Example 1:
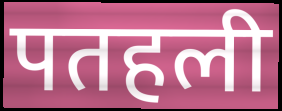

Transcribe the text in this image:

पतहली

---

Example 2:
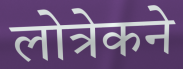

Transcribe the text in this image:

लोत्रेकने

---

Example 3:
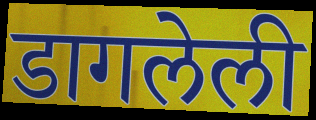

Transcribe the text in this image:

डागलेली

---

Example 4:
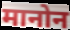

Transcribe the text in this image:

मानोन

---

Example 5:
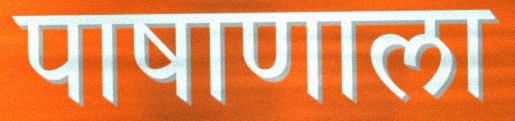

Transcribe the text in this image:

पाषाणाला